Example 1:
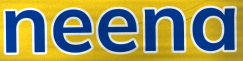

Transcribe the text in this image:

neena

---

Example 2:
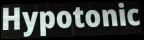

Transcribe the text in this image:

Hypotonic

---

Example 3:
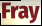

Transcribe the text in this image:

Fray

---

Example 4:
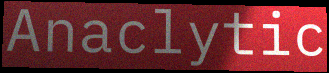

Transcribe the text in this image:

Anaclytic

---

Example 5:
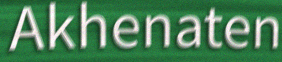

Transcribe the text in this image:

Akhenaten